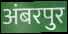
अंबरपुर